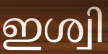
ഇശ്വി